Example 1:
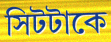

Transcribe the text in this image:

সিটটাকে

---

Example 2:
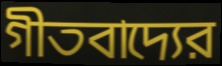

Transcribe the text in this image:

গীতবাদ্যের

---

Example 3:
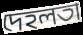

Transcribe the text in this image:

দেহলতা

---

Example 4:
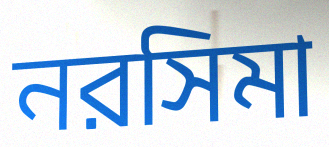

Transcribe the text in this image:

নরসিমা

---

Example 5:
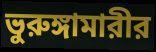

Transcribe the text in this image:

ভুরুঙ্গামারীর